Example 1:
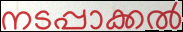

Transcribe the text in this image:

നടപ്പാക്കൽ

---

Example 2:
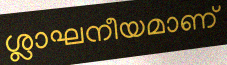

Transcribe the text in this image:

ശ്ലാഘനീയമാണ്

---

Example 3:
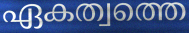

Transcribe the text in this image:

ഏകത്വത്തെ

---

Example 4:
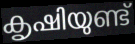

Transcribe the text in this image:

കൃഷിയുണ്ട്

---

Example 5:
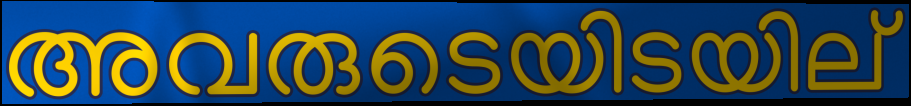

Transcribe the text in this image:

അവരുടെയിടയില്